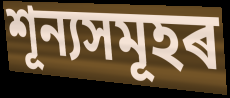
শূন্যসমূহৰ